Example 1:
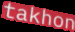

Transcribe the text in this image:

takhon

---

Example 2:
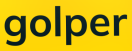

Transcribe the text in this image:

golper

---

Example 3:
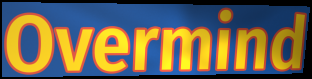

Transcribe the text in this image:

Overmind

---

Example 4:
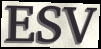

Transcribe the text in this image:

ESV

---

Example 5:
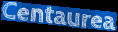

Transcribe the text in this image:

Centaurea